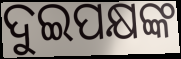
ଦୁଇପକ୍ଷଙ୍କ